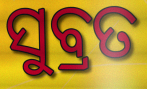
ସୁବ୍ରତ